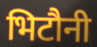
भिटौनी